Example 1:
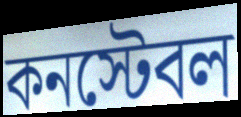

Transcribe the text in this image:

কনস্টেবল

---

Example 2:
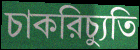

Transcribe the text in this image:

চাকরিচ্যুতি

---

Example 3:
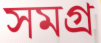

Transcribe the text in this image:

সমগ্র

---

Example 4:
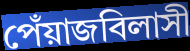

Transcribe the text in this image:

পেঁয়াজবিলাসী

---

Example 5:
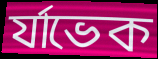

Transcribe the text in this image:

র্যাভেক